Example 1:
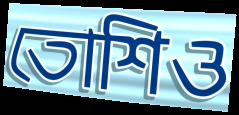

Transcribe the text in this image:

তোশিও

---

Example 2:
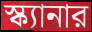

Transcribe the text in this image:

স্ক্যানার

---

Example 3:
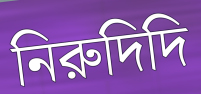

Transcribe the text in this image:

নিরুদিদি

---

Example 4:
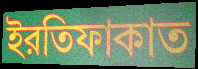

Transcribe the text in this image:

ইরতিফাকাত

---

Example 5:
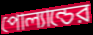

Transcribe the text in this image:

পোল্যান্ডের